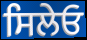
ਸਿਲੇਓ